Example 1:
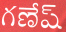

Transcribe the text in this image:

గణేష్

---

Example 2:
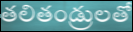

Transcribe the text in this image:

తలితండ్రులతో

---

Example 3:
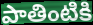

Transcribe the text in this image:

పాతింటికి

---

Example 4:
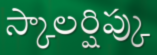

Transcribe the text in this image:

స్కాలర్షిప్కు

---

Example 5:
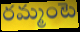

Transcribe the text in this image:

రమ్మంటె